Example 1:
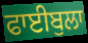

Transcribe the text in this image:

ਫਾਈਬੁਲਾ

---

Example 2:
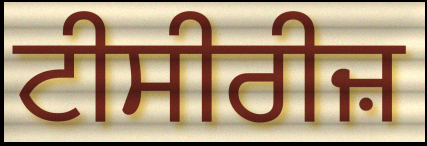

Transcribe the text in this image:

ਟੀਸੀਰੀਜ਼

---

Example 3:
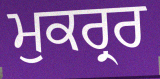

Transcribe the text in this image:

ਮੁਕਰ੍ਰਰ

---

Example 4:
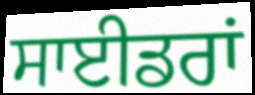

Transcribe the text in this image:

ਸਾਈਡਰਾਂ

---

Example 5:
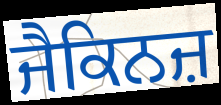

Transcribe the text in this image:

ਜੈਕਿਨਜ਼